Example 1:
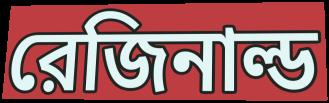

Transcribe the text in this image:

রেজিনাল্ড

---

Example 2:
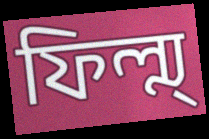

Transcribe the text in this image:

ফিল্ম্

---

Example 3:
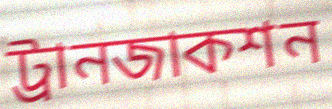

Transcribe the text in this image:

ট্রানজাকশন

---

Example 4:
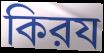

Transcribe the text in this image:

কিরয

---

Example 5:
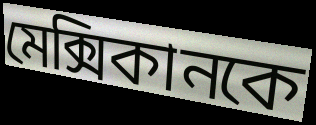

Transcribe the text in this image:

মেক্সিকানকে